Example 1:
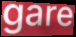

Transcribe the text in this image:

gare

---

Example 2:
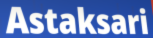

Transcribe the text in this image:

Astaksari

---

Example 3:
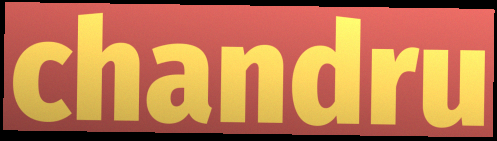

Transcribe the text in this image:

chandru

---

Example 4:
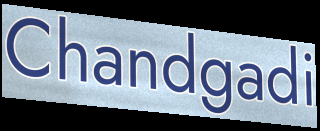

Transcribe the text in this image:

Chandgadi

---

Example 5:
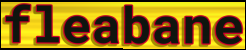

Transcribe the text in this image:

fleabane